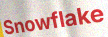
Snowflake